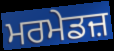
ਮਰਮੇਡਜ਼